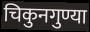
चिकुनगुण्या